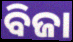
ବିଜା